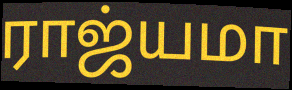
ராஜ்யமா